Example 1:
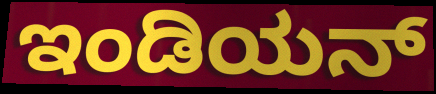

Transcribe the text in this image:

ಇಂಡಿಯನ್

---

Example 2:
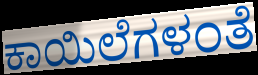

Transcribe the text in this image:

ಕಾಯಿಲೆಗಳಂತೆ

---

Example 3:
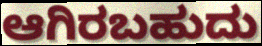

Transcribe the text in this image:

ಆಗಿರಬಹುದು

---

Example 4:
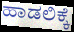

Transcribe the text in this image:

ಹಾಡಲಿಕ್ಕೆ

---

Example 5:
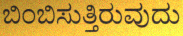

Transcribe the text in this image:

ಬಿಂಬಿಸುತ್ತಿರುವುದು